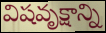
విషవృక్షాన్ని